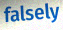
falsely